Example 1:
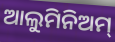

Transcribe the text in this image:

ଆଲୁମିନିଅମ୍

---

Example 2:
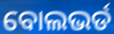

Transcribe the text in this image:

ବୋଲଭର୍ଡ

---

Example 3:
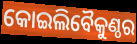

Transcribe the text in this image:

କୋଇଲିବୈକୁଣ୍ଠର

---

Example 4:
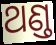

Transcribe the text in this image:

ଥଣ୍ଡ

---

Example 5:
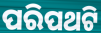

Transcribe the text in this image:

ପରିପଥଟି